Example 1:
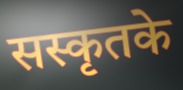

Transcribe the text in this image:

सस्कृतके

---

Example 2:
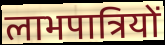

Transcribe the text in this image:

लाभपात्रियों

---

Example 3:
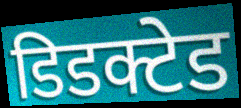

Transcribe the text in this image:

डिडक्टेड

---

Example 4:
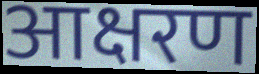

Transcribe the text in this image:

आक्षरण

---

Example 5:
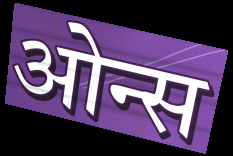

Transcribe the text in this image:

ओन्स